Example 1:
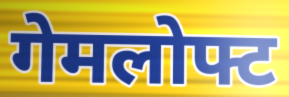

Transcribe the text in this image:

गेमलोफ्ट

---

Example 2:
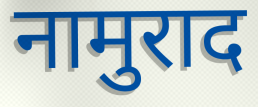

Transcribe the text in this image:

नामुराद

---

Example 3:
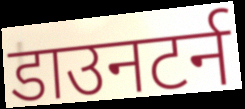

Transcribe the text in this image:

डाउनटर्न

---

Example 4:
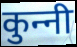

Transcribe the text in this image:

कुन्नी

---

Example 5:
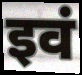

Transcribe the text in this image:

इवं